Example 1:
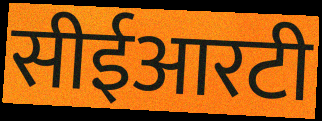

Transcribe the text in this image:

सीईआरटी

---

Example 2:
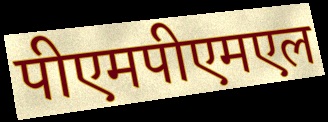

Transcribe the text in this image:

पीएमपीएमएल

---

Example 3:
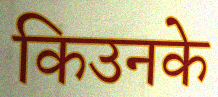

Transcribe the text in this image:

किउनके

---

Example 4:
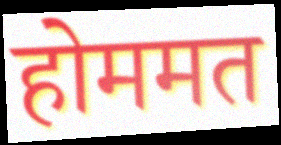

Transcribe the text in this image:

होममत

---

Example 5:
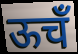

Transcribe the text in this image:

ऊचँ